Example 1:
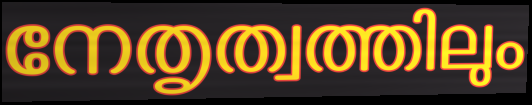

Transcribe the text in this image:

നേതൃത്വത്തിലും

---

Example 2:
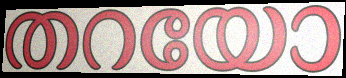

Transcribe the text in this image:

തറയോ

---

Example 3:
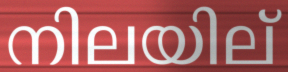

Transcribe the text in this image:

നിലയില്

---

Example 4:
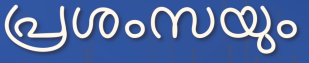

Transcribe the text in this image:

പ്രശംസയും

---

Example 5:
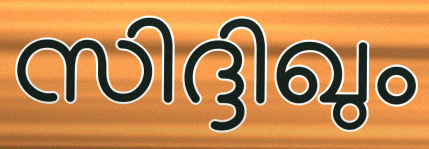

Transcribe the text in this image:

സിദ്ദിഖും